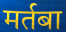
मर्तबा